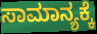
ಸಾಮಾನ್ಯಕ್ಕೆ